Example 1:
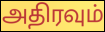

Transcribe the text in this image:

அதிரவும்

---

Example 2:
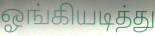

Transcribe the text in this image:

ஓங்கியடித்து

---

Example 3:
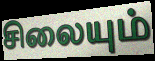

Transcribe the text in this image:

சிலையும்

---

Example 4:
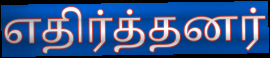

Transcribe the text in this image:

எதிர்த்தனர்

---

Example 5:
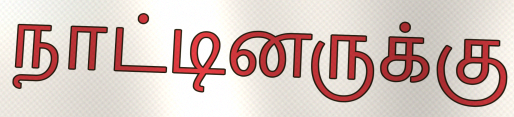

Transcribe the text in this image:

நாட்டினருக்கு